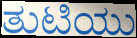
ತುಟಿಯು